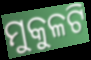
ମୁକୁଳଟି